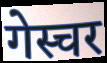
गेस्चर